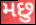
મછુ